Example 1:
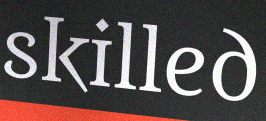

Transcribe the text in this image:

skilled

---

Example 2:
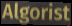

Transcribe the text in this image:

Algorist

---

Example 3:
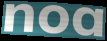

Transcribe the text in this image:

noa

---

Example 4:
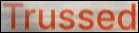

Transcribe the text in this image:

Trussed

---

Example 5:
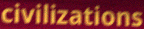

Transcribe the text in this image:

civilizations